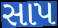
સાપ